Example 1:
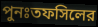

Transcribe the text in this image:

পুনঃতফসিলের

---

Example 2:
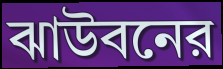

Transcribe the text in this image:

ঝাউবনের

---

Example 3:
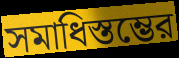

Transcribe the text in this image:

সমাধিস্তম্ভের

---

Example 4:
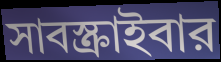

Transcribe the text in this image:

সাবস্ক্রাইবার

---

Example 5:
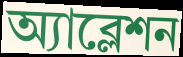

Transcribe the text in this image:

অ্যাব্লেশন